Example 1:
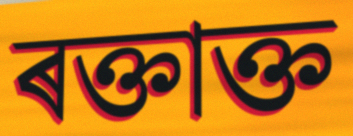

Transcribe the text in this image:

ৰক্তাক্ত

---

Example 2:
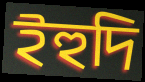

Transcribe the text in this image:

ইহুদি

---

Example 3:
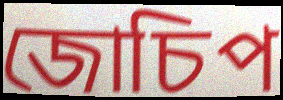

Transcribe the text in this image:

জোচিপ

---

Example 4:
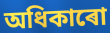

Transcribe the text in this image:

অধিকাৰো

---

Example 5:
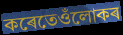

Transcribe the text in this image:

কৰেতেওঁলোকৰ